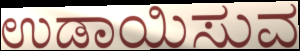
ಉಡಾಯಿಸುವ